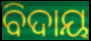
ବିଦାୟ